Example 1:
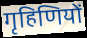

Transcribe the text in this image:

गृहिणियों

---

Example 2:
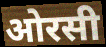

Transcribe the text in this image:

ओरसी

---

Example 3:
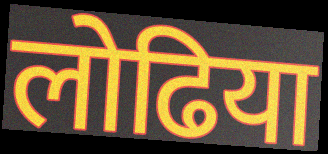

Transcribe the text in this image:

लोढिया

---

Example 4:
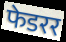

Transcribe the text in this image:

फेडरर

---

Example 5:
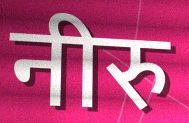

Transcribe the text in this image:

नीरु